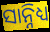
ସାନ୍ନିଧ୍ୟ